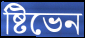
ষ্টিভেন